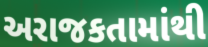
અરાજકતામાંથી